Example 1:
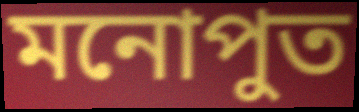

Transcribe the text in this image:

মনোপুত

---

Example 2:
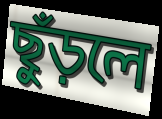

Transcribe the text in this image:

ছুঁড়লে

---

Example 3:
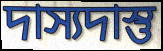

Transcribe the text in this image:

দাস্যদাস্তু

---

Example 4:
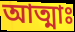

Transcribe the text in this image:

আত্মাঃ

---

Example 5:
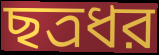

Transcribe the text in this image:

ছত্রধর